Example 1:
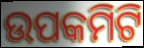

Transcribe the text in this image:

ଉପକମିଟି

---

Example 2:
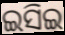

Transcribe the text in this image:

ଇସିଇ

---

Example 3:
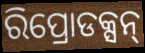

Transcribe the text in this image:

ରିପ୍ରୋଡକ୍ସନ୍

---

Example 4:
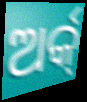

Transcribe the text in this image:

ଅର୍କ୍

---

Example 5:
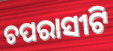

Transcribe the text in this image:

ଚପରାସୀଟି